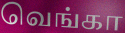
வெங்கா